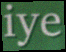
iye